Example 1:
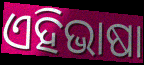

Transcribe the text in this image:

ଏହିଭାଷା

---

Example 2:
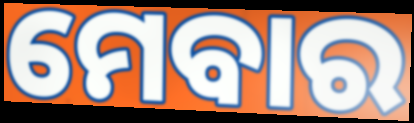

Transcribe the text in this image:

ମେବାର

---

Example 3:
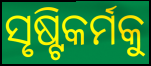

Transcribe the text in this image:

ସୃଷ୍ଟିକର୍ମକୁ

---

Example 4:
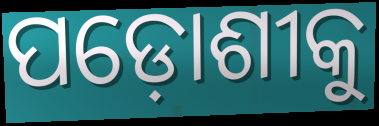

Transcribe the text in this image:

ପଡ଼ୋଶୀକୁ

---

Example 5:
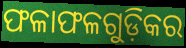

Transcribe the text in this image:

ଫଳାଫଳଗୁଡ଼ିକର